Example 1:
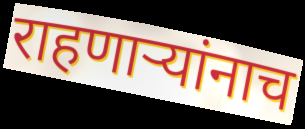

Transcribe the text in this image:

राहणाऱ्यांनाच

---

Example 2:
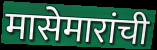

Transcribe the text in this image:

मासेमारांची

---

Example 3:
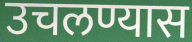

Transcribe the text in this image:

उचलण्यास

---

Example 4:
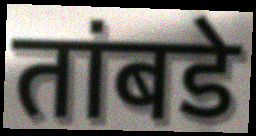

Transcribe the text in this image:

तांबडे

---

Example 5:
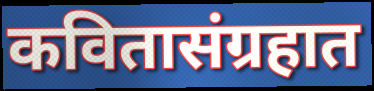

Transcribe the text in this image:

कवितासंग्रहात